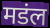
मडंल